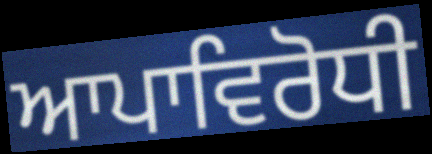
ਆਪਾਵਿਰੋਧੀ